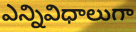
ఎన్నివిధాలుగా